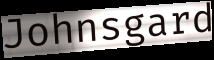
Johnsgard